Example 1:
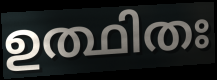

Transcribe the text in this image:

ഉത്ഥിതഃ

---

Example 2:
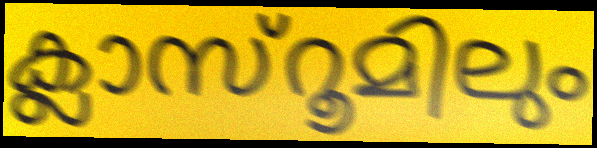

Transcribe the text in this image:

ക്ലാസ്റൂമിലും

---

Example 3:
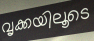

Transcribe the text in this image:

വൃക്കയിലൂടെ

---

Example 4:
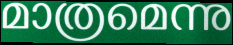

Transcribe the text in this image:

മാത്രമെന്നു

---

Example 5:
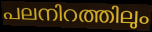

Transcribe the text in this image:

പലനിറത്തിലും